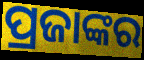
ପ୍ରଜାଙ୍କର